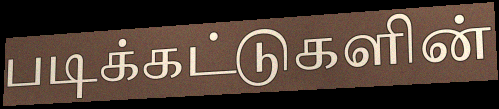
படிக்கட்டுகளின்